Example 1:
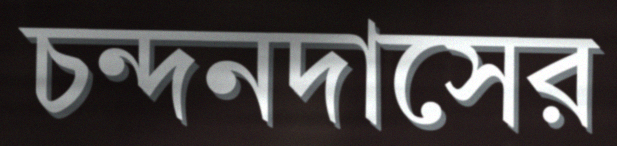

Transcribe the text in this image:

চন্দনদাসের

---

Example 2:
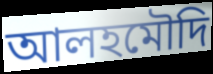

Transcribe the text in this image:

আলহমৌদি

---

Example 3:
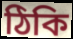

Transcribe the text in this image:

ঠিকি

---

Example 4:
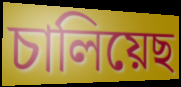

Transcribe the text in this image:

চালিয়েছ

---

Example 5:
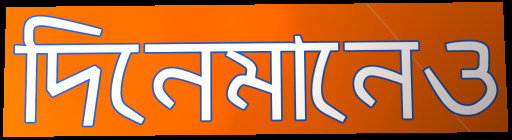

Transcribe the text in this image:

দিনেমানেও